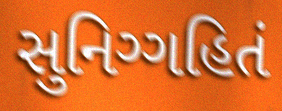
સુનિગ્ગહિતં